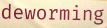
deworming